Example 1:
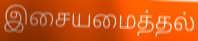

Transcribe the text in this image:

இசையமைத்தல்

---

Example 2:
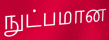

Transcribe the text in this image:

நுட்பமான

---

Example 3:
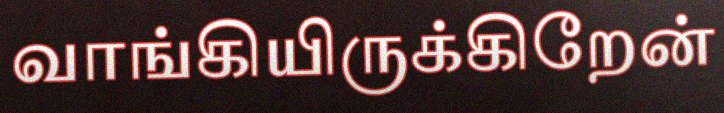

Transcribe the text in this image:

வாங்கியிருக்கிறேன்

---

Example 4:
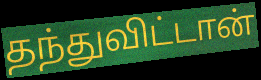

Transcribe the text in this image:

தந்துவிட்டான்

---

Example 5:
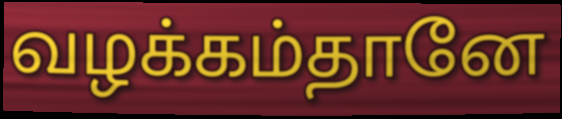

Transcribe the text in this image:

வழக்கம்தானே